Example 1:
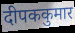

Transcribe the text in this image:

दीपककुमार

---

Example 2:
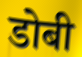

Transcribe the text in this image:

डोबी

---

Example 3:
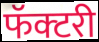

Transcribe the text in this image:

फॅक्‍टरी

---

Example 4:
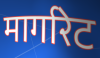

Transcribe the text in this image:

मार्गारेट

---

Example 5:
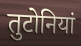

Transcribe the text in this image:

तुटोनियां